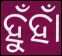
ହୁଁହାଁ